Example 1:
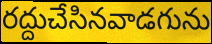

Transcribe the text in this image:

రద్దుచేసినవాడగును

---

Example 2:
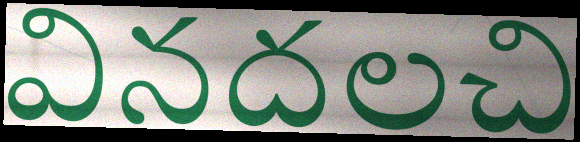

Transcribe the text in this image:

వినదలచి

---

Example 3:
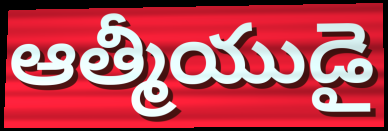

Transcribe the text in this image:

ఆత్మీయుడై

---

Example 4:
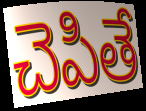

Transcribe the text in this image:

చెపితే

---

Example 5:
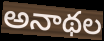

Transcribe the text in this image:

అనాథల